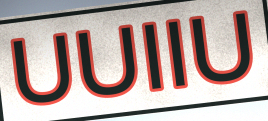
UUIIU